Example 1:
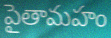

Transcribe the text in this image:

పైతామహం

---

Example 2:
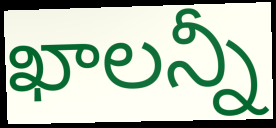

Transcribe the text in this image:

ఖాలన్నీ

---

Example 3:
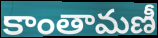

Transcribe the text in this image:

కాంతామణీ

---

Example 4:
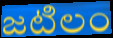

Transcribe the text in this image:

జటిలం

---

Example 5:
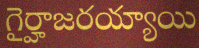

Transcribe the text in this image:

గైర్హాజరయ్యాయి